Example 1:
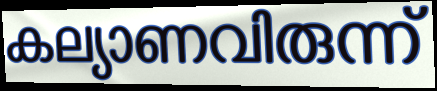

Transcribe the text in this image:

കല്യാണവിരുന്ന്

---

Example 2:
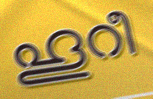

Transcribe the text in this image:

ഹൂറീ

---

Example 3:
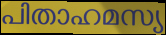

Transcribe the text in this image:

പിതാഹമസ്യ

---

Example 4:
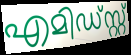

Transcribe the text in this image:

എമിഡ്സ്റ്റ്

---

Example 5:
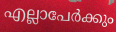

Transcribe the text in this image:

എല്ലാപേർക്കും